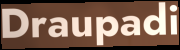
Draupadi